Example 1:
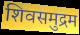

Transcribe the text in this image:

शिवसमुद्रम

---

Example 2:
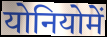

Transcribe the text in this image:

योनियोमें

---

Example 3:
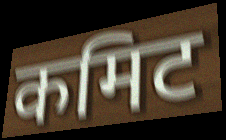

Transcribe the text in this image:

कमिट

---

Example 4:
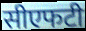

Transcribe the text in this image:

सीएफटी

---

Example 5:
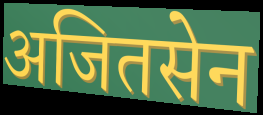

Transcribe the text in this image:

अजितसेन